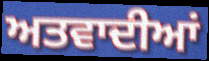
ਅਤਵਾਦੀਆਂ